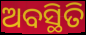
ଅବସ୍ଥିତି